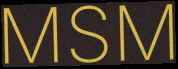
MSM